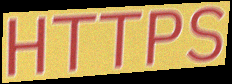
HTTPS